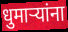
धुमाऱ्यांना